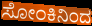
ಸೋಂಕಿನಿಂದ